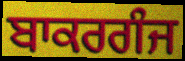
ਬਾਕਰਗੰਜ